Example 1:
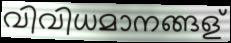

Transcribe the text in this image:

വിവിധമാനങ്ങള്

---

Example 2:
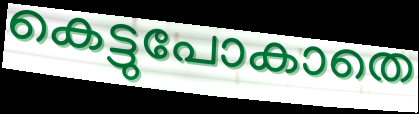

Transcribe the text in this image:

കെട്ടുപോകാതെ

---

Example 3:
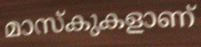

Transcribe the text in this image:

മാസ്കുകളാണ്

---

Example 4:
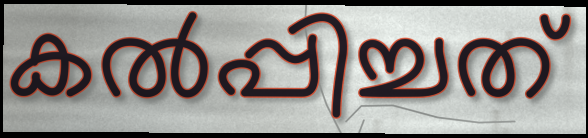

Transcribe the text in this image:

കൽപ്പിച്ചത്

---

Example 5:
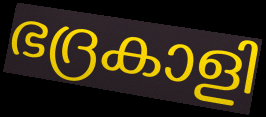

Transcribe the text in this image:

ഭദ്രകാളി